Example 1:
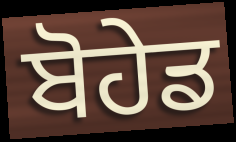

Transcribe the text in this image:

ਬੋਹੇਡ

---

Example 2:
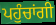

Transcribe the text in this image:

ਪਹੁੰਚਾਂਗੀ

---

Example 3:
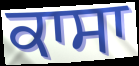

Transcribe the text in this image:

ਕਾਸਾ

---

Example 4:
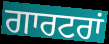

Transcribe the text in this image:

ਗਾਰਟਰਾਂ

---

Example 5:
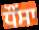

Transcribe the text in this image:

ਧੌਂਸਾ